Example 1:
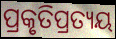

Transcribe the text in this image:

ପ୍ରକୃତିପ୍ରତ୍ୟୟ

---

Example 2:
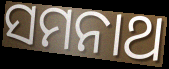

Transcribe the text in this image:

ସମନାଥ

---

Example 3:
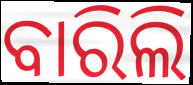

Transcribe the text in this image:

ବାରିଲି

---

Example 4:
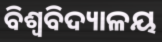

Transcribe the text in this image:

ବିଶ୍ଵବିଦ୍ୟାଳୟ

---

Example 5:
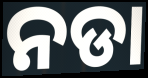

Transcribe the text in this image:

ନଡା